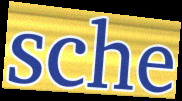
sche